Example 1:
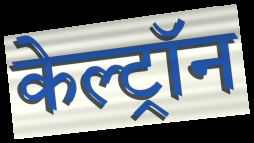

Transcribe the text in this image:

केल्ट्रॉन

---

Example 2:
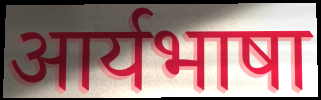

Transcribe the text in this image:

आर्यभाषा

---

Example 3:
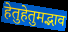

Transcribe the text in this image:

हेतुहेतुमद्भाव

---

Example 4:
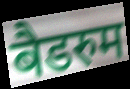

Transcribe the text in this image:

बैडरुम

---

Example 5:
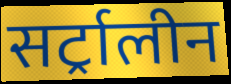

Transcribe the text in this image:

सर्ट्रालीन